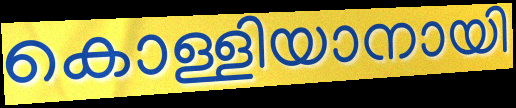
കൊള്ളിയാനായി